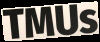
TMUs